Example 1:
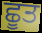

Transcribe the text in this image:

ਛੂਤ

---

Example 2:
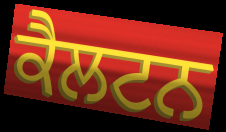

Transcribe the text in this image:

ਕੈਲਟਨ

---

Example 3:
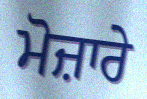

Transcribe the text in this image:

ਮੋਜ਼ਾਰੇ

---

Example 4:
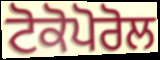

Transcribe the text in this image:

ਟੋਕੋਪੋਰੋਲ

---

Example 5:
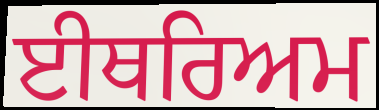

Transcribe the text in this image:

ਈਥਰਿਅਮ